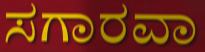
ಸಗಾರವಾ